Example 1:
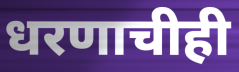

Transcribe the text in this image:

धरणाचीही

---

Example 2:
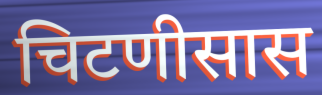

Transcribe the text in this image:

चिटणीसास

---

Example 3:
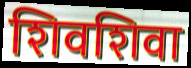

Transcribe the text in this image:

शिवशिवा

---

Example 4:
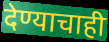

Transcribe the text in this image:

देण्याचाही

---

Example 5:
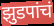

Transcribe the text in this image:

झुडपांचं